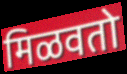
मिळवतो